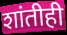
शांतीही